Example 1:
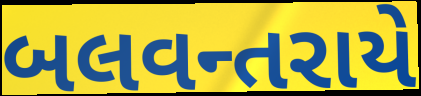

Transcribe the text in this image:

બલવન્તરાયે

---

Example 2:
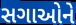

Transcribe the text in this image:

સગાઓને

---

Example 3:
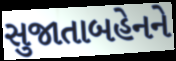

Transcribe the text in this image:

સુજાતાબહેનને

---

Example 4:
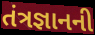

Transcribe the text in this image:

તંત્રજ્ઞાનની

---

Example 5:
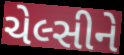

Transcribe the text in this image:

ચેલ્સીને